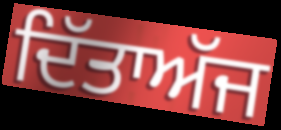
ਦਿੱਤਾਅੱਜ